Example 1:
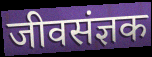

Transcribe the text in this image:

जीवसंज्ञक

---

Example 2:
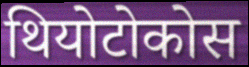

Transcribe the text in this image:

थियोटोकोस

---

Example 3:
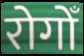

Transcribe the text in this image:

रोगोँ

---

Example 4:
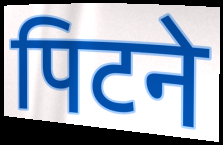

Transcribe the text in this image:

पिटने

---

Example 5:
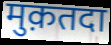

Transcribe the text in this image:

मुक़तदा